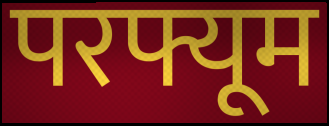
परफ्यूम